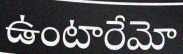
ఉంటారేమో